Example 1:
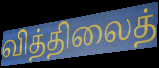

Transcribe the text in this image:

வித்திலைத்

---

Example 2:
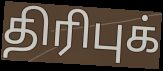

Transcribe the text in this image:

திரிபுக்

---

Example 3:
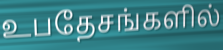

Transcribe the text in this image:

உபதேசங்களில்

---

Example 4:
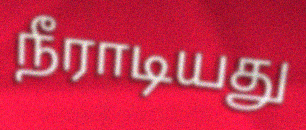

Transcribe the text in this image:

நீராடியது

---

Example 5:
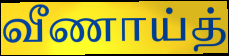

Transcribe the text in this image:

வீணாய்த்